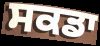
ਸਕਡਾ